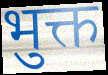
भुक्त